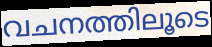
വചനത്തിലൂടെ